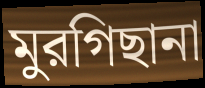
মুরগিছানা